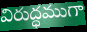
విరుద్ధముగా